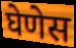
घेणेस